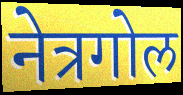
नेत्रगोल